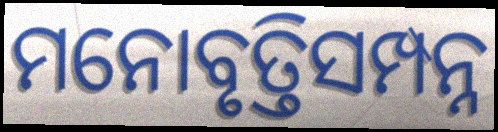
ମନୋବୃତ୍ତିସମ୍ପନ୍ନ